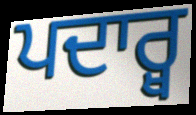
ਪਦਾਰ੍ਥ